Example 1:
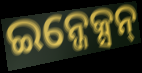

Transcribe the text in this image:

ଇନ୍ଜେକ୍ସନ୍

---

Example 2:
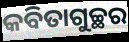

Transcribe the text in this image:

କବିତାଗୁଚ୍ଛର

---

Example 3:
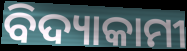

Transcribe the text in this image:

ବିଦ୍ୟାକାମୀ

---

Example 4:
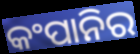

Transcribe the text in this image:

କଂପାନିର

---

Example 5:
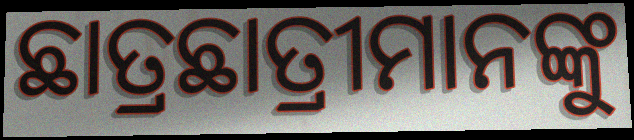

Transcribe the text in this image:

ଛାତ୍ରଛାତ୍ରୀମାନଙ୍କୁ